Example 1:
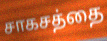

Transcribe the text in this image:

சாகசத்தை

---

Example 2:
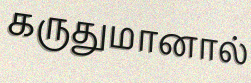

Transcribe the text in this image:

கருதுமானால்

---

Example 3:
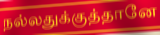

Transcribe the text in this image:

நல்லதுக்குத்தானே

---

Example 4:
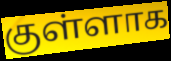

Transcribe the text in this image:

குள்ளாக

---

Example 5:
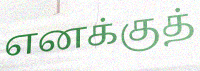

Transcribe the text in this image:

எனக்குத்